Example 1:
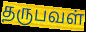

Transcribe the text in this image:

தருபவள்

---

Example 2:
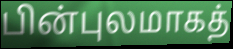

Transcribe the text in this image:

பின்புலமாகத்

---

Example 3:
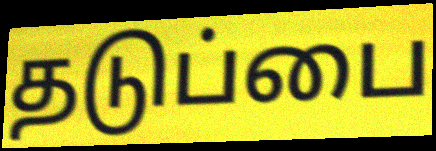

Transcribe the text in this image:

தடுப்பை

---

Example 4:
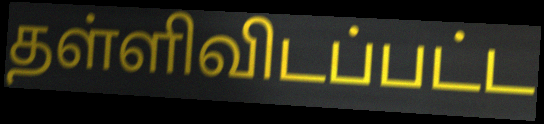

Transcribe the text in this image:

தள்ளிவிடப்பட்ட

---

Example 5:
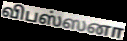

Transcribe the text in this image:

விபஸ்ஸனா